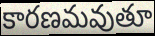
కారణమవుతూ